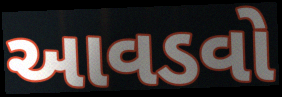
આવડવો